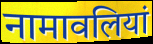
नामावलियां